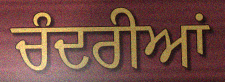
ਚੰਦਰੀਆਂ